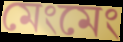
মেংমেং